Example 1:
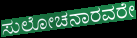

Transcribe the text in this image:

ಸುಲೋಚನಾರವರೇ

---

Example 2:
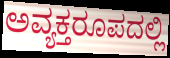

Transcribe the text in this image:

ಅವ್ಯಕ್ತರೂಪದಲ್ಲಿ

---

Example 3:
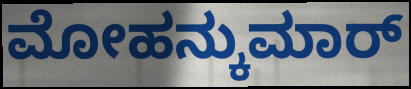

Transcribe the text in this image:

ಮೋಹನ್ಕುಮಾರ್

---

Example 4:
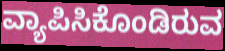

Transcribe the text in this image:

ವ್ಯಾಪಿಸಿಕೊಂಡಿರುವ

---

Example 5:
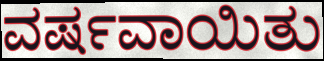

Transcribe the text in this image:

ವರ್ಷವಾಯಿತು